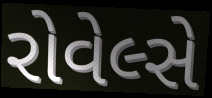
રોવેલ્સે